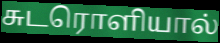
சுடரொளியால்